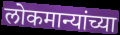
लोकमान्यांच्या